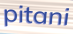
pitani